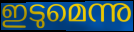
ഇടുമെന്നു